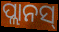
ପ୍ଲାନସ୍